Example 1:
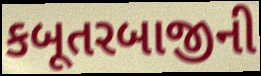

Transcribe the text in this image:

કબૂતરબાજીની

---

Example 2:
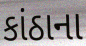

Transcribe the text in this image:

કાંઠાના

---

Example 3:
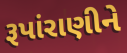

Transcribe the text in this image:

રૂપાંરાણીને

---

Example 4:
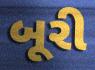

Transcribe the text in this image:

બૂરી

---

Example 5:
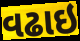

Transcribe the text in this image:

વઢાઇ